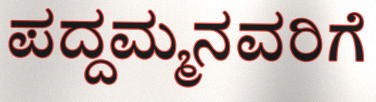
ಪದ್ದಮ್ಮನವರಿಗೆ